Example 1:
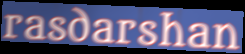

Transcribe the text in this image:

rasdarshan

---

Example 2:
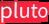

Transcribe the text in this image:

pluto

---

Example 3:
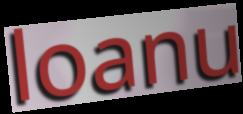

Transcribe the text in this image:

loanu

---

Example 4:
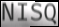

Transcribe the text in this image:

NISQ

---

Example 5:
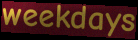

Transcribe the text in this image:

weekdays